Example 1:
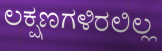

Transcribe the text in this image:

ಲಕ್ಷಣಗಳಿರಲಿಲ್ಲ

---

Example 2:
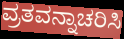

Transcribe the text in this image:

ವ್ರತವನ್ನಾಚರಿಸಿ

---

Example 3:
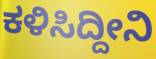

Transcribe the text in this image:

ಕಳಿಸಿದ್ದೀನಿ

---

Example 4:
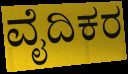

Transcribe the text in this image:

ವೈದಿಕರ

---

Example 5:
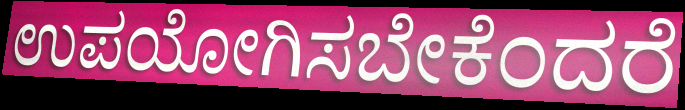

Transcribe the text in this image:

ಉಪಯೋಗಿಸಬೇಕೆಂದರೆ